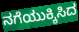
ನಗೆಯುಕ್ಕಿಸಿದ